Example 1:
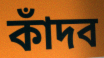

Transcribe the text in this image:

কাঁদব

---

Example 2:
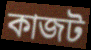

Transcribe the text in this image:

কাজট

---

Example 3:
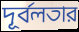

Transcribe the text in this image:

দূর্বলতার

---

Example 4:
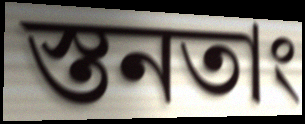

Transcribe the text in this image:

স্তনতাং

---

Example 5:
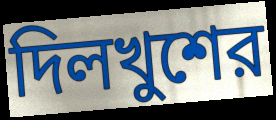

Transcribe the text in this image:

দিলখুশের